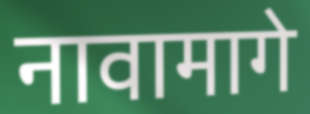
नावामागे